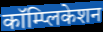
कॉम्प्लिकेशन